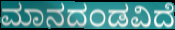
ಮಾನದಂಡವಿದೆ